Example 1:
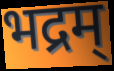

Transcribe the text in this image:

भद्रम्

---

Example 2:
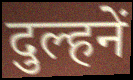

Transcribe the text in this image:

दुल्हनें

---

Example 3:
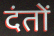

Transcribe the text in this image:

दंतों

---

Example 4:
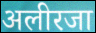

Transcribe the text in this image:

अलीरजा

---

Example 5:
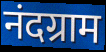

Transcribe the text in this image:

नंदग्राम